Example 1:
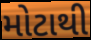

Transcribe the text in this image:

મોટાથી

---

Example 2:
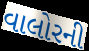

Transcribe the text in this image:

વાલોરની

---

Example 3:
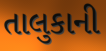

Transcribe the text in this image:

તાલુકાની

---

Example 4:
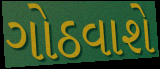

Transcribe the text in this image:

ગોઠવાશે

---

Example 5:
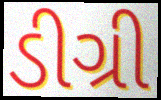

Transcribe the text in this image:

ડીગ્રી